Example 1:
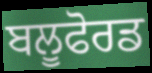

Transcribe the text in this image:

ਬਲੂਫੋਰਡ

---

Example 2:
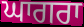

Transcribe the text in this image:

ਘਾਗਰਾ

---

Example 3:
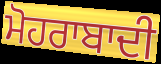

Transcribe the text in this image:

ਮੋਹਰਾਬਾਦੀ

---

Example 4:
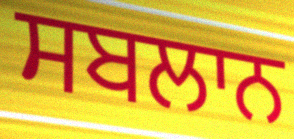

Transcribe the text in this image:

ਸਬਲਾਨ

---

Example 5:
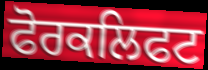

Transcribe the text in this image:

ਫੋਰਕਲਿਫਟ